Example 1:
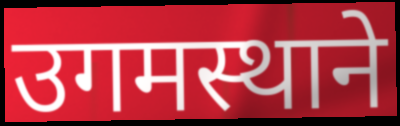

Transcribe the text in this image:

उगमस्थाने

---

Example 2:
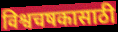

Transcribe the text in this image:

विश्वचषकासाठी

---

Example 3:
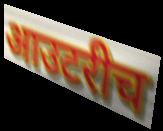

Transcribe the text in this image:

आउटरीच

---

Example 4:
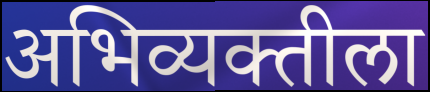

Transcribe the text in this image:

अभिव्यक्तीला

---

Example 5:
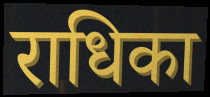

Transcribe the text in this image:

राधिका